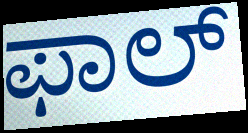
ಫಾಲ್